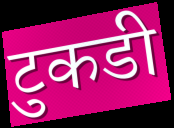
टुकडी